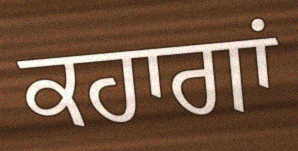
ਕਹਾਗਾਂ